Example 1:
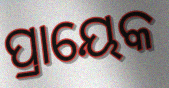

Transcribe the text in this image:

ପ୍ରାୟେକ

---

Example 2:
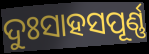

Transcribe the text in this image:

ଦୁଃସାହସପୂର୍ଣ୍ଣ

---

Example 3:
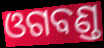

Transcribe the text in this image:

ଓଗବଣ୍ଡ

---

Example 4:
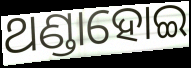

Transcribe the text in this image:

ଥଣ୍ଡାହୋଇ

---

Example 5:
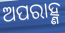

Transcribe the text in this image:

ଅପରାହ୍ଣ